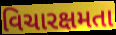
વિચારક્ષમતા